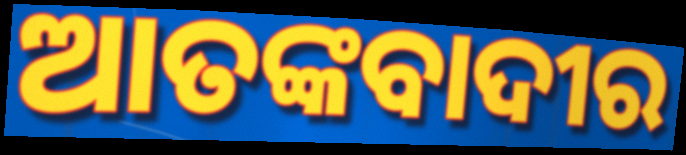
ଆତଙ୍କବାଦୀର